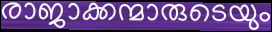
രാജാക്കന്മാരുടെയും